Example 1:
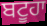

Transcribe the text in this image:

ਬਟੂਹਾ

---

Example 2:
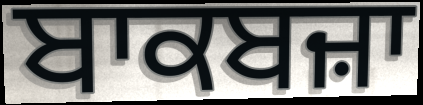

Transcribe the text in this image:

ਬਾਕਬਜ਼ਾ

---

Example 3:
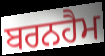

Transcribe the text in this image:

ਬਰਨਹੈਮ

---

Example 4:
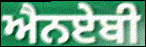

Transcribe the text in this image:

ਐਨਏਬੀ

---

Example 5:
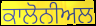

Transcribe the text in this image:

ਕਾਲੋਨੀਅਲ